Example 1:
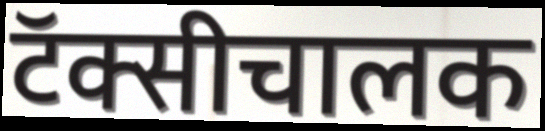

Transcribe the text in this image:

टॅक्सीचालक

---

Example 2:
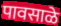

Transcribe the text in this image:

पावसाळे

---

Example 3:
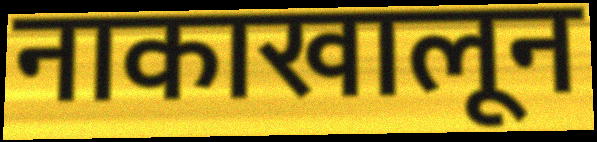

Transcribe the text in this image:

नाकाखालून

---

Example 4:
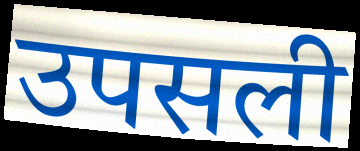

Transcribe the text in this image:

उपसली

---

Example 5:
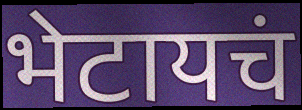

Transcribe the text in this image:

भेटायचं